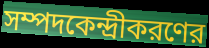
সম্পদকেন্দ্রীকরণের